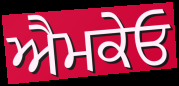
ਐਮਕੇਓ